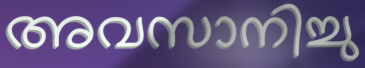
അവസാനിച്ചു